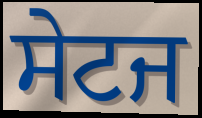
ਸੇਟਜ